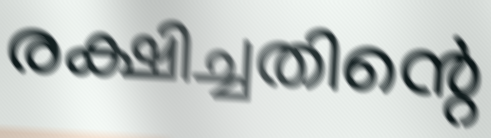
രക്ഷിച്ചതിന്റെ